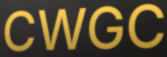
CWGC